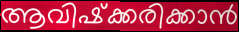
ആവിഷ്‌ക്കരിക്കാൻ